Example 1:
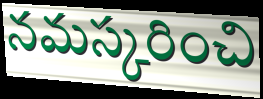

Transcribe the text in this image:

నమస్కరించి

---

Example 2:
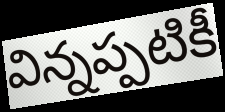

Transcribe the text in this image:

విన్నప్పటికీ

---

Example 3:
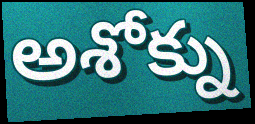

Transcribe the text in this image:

అశోక్ను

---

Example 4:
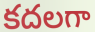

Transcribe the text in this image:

కదలగా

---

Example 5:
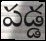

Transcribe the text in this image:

పడ్డ